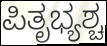
ಪಿತೃಭ್ಯಶ್ಚ